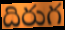
దిరుగ